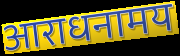
आराधनामय